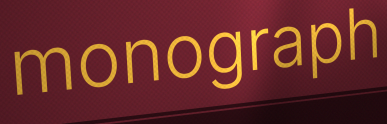
monograph